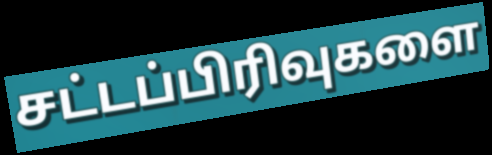
சட்டப்பிரிவுகளை